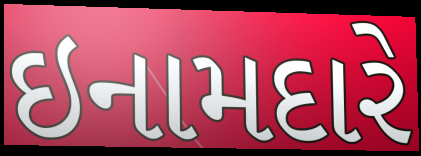
ઇનામદારે